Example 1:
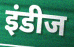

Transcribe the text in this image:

इंडीज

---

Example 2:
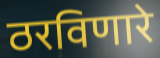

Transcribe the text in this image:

ठरविणारे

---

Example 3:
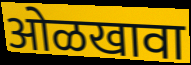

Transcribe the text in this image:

ओळखावा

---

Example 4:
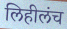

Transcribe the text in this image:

लिहीलंच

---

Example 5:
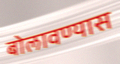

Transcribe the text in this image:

बोलावण्यास